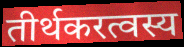
तीर्थकरत्वस्य